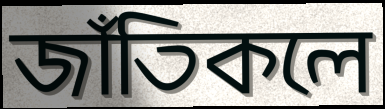
জাঁতিকলে